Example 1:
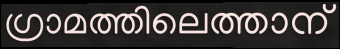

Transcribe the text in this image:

ഗ്രാമത്തിലെത്താന്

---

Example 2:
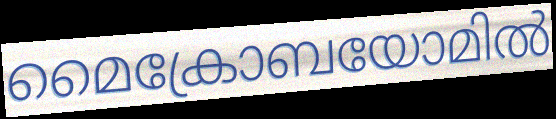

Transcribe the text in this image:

മൈക്രോബയോമിൽ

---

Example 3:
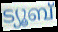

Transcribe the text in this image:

ട്യൂബ്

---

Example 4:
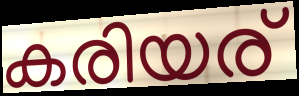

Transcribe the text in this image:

കരിയര്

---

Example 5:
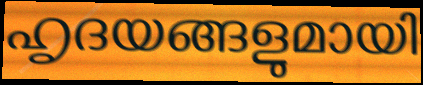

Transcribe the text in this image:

ഹൃദയങ്ങളുമായി